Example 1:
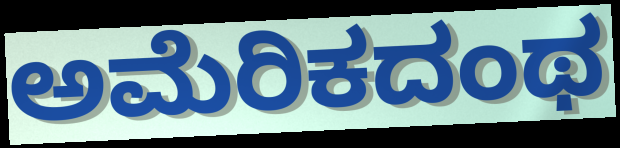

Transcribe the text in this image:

ಅಮೆರಿಕದಂಥ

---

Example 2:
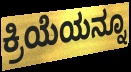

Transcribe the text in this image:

ಕ್ರಿಯೆಯನ್ನೂ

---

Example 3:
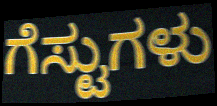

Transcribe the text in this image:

ಗೆಸ್ಟುಗಳು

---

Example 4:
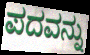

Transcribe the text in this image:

ಪದವನ್ನು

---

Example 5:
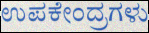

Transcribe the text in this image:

ಉಪಕೇಂದ್ರಗಳು